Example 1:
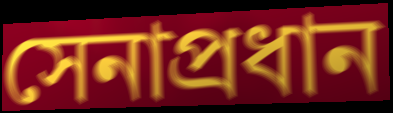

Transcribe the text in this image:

সেনাপ্রধান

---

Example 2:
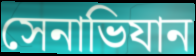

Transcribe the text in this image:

সেনাভিযান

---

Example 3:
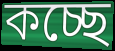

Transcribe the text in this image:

কচ্ছে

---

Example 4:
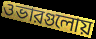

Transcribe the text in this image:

ওভারগুলোয়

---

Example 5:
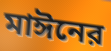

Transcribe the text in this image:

মাঈনের